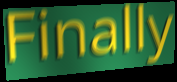
Finally